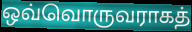
ஒவ்வொருவராகத்